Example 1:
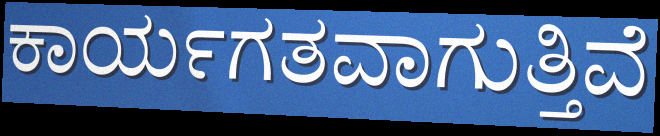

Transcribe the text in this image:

ಕಾರ್ಯಗತವಾಗುತ್ತಿವೆ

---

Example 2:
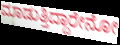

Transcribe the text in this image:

ಮಾಡುತ್ತಿದ್ದಾರೇನೋ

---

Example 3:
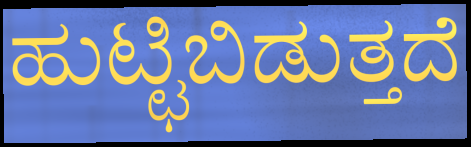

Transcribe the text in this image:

ಹುಟ್ಟಿಬಿಡುತ್ತದೆ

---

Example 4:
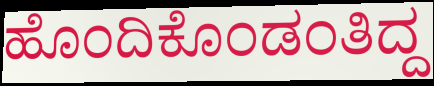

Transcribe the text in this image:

ಹೊಂದಿಕೊಂಡಂತಿದ್ದ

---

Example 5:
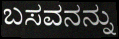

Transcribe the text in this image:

ಬಸವನನ್ನು